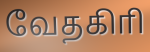
வேதகிரி